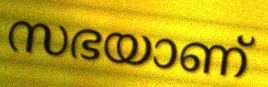
സഭയാണ്